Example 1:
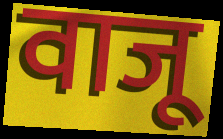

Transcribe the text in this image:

वाजू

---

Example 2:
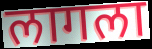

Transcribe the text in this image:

लागला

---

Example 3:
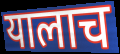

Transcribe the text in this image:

यालाच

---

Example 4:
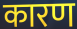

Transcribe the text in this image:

कारण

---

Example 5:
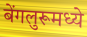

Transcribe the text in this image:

बेंगलुरूमध्ये